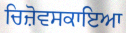
ਚਿਜ਼ੋਵਸਕਾਇਆ